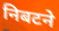
निबटने